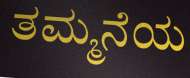
ತಮ್ಮನೆಯ